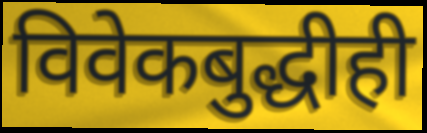
विवेकबुद्धीही